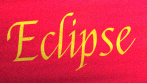
Eclipse